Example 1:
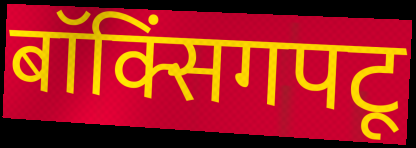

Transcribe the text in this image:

बॉक्सिंगपटू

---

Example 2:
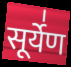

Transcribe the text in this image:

सूर्ये॑ण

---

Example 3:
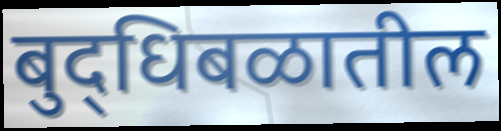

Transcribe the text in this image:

बुद्धिबळातील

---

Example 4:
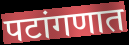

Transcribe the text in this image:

पटांगणात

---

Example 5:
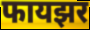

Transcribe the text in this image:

फायझर